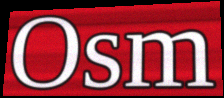
Osm